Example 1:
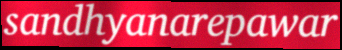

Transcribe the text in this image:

sandhyanarepawar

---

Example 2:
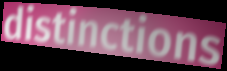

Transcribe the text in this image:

distinctions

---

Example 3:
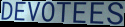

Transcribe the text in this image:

DEVOTEES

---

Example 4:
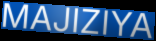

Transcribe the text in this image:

MAJIZIYA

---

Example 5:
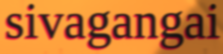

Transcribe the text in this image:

sivagangai